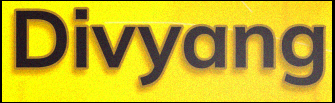
Divyang